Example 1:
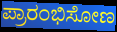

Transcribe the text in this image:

ಪ್ರಾರಂಭಿಸೋಣ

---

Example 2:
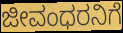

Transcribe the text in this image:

ಜೀವಂಧರನಿಗೆ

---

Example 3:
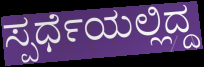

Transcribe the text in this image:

ಸ್ಪರ್ಧೆಯಲ್ಲಿದ್ದ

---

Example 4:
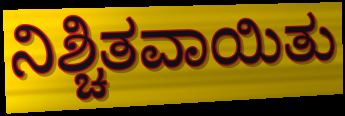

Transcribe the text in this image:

ನಿಶ್ಚಿತವಾಯಿತು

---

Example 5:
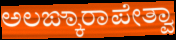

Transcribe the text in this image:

ಅಲಙ್ಕಾರಾಪೇತ್ವಾ